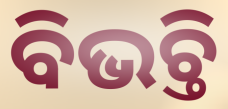
ବିଭଚ୍ତି